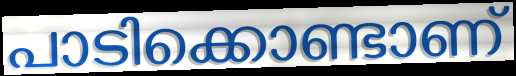
പാടിക്കൊണ്ടാണ്